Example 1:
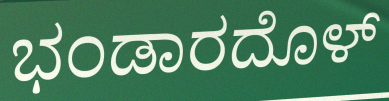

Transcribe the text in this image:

ಭಂಡಾರದೊಳ್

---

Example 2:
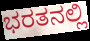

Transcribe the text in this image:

ಭರತನಲ್ಲಿ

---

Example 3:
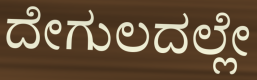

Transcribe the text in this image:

ದೇಗುಲದಲ್ಲೇ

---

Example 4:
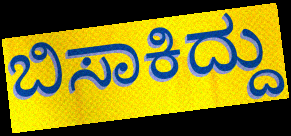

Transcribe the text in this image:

ಬಿಸಾಕಿದ್ದು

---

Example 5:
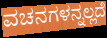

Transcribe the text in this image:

ವಚನಗಳನ್ನಲ್ಲದೆ